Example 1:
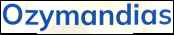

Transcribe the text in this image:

Ozymandias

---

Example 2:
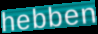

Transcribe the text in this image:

hebben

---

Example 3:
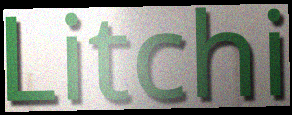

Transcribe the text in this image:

Litchi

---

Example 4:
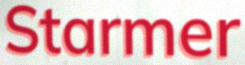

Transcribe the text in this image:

Starmer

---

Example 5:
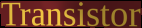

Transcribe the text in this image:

Transistor